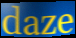
daze